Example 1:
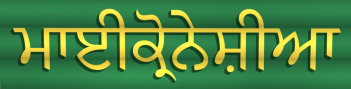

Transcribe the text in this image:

ਮਾਈਕ੍ਰੋਨੇਸ਼ੀਆ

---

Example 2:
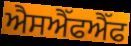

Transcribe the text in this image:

ਐਸਐੱਫਐੱਫ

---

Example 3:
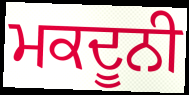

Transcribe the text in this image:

ਮਕਦੂਨੀ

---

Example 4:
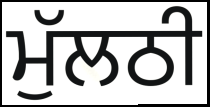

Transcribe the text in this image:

ਮੁੱਲਠੀ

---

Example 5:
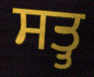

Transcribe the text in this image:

ਸਤ੍ਤ